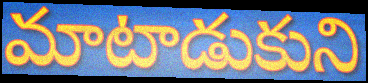
మాటాడుకుని